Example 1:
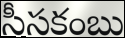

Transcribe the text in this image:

సీసకంబు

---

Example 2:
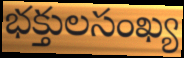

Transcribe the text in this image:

భక్తులసంఖ్య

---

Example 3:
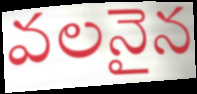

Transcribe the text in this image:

వలనైన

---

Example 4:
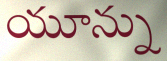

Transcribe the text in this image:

యూన్ను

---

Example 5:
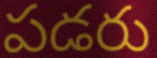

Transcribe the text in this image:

పడరు